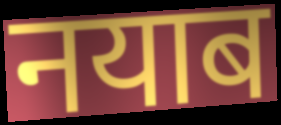
नयाब